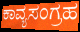
ಕಾವ್ಯಸಂಗ್ರಹ